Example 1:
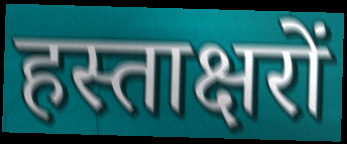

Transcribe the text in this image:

हस्ताक्षरों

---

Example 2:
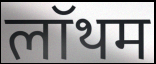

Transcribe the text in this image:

लॉथम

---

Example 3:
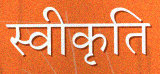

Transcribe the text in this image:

स्वीकृति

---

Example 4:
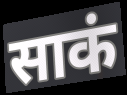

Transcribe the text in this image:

साकं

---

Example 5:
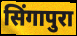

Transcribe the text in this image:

सिंगापुरा